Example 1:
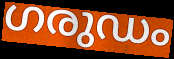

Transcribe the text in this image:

ഗരുഡം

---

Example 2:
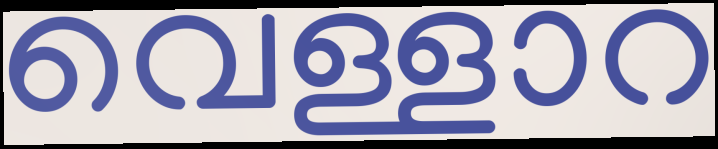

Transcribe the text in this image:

വെള്ളാറ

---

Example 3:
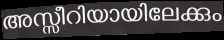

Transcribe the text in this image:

അസ്സീറിയായിലേക്കും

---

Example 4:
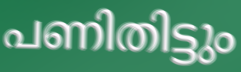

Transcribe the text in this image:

പണിതിട്ടും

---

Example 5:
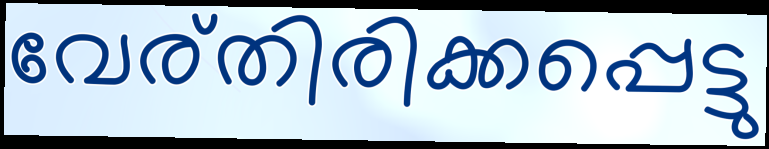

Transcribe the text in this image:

വേര്തിരിക്കപ്പെട്ടു